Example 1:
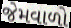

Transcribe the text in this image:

જેમવાળો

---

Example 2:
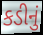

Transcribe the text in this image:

કડીનું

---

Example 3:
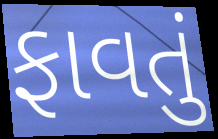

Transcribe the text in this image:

ફાવતું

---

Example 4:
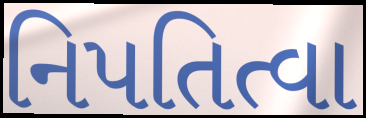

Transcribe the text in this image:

નિપતિત્વા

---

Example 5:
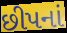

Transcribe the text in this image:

છીપનાં